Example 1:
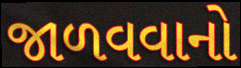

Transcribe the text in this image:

જાળવવાનો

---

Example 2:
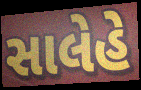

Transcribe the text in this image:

સાલેહે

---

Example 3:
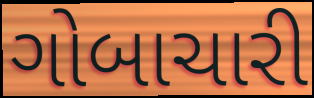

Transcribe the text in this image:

ગોબાચારી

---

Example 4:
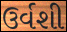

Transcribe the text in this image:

ઉર્વશી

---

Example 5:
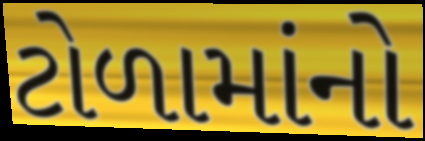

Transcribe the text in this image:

ટોળામાંનો